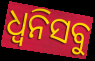
ଧ୍ୱନିସବୁ